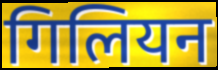
गिलियन